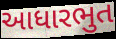
આધારભુત